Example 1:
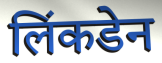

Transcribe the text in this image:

लिंकडेन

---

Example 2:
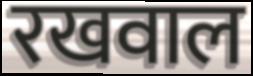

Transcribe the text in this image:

रखवाल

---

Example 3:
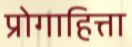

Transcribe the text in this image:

प्रोगाहित्ता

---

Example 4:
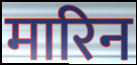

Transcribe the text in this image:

मारिन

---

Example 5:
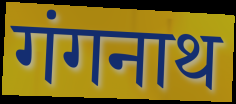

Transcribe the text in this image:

गंगनाथ